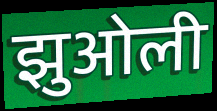
झुओली